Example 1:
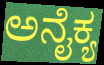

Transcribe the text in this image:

ಅನೈಕ್ಯ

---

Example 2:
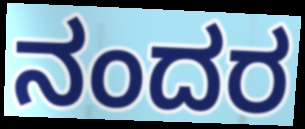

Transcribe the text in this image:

ನಂದರ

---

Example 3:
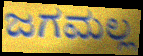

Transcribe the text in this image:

ಜಗಮಲ್ಲ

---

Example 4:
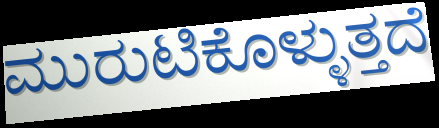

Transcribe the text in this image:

ಮುರುಟಿಕೊಳ್ಳುತ್ತದೆ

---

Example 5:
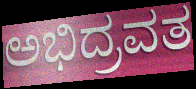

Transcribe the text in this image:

ಅಭಿದ್ರವತ